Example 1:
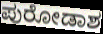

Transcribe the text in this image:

ಪುರೋಡಾಶ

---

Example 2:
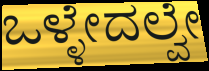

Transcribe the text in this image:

ಒಳ್ಳೇದಲ್ವೇ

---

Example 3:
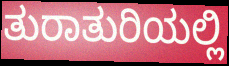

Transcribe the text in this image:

ತುರಾತುರಿಯಲ್ಲಿ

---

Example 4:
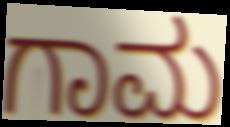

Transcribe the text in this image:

ಗಾಮ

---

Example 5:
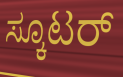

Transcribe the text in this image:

ಸ್ಕೂಟರ್